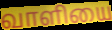
வாளியை